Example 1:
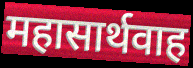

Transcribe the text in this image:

महासार्थवाह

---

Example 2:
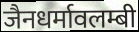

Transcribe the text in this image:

जैनधर्मावलम्बी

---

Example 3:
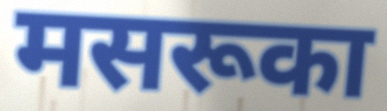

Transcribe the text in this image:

मसरूका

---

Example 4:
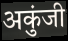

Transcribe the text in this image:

अकुंजी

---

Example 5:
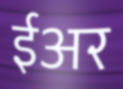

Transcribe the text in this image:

ईअर